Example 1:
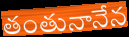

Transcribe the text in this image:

తంతునానేన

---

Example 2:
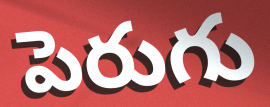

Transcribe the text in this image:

పెరుగు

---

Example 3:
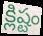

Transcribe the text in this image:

క్లిష్టం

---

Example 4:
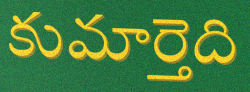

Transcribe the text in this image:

కుమార్తెది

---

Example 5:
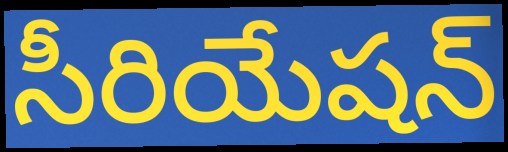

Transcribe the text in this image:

సీరియేషన్